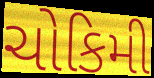
ચોકિમી